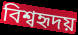
বিশ্বহৃদয়